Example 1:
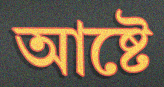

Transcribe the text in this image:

আষ্টে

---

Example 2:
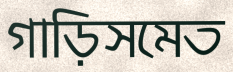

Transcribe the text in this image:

গাড়িসমেত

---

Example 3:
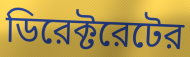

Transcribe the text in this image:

ডিরেক্টরেটের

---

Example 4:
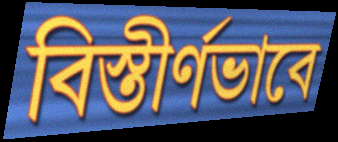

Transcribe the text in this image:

বিস্তীর্ণভাবে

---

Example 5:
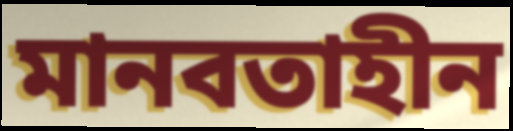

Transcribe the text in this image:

মানবতাহীন